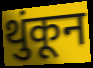
थुंकून